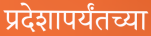
प्रदेशापर्यंतच्या